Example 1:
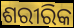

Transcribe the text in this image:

ଶରୀରିକ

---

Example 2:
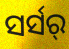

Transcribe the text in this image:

ସର୍ସର୍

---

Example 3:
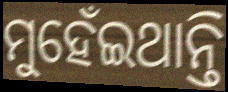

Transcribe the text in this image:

ମୁହେଁଇଥାନ୍ତି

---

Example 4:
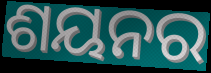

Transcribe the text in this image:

ଶୟନର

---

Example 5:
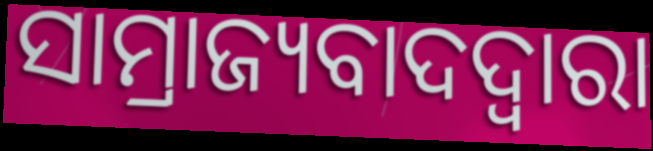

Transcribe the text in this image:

ସାମ୍ରାଜ୍ୟବାଦଦ୍ୱାରା